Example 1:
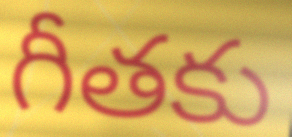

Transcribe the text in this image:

గీతకు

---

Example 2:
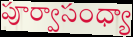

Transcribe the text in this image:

పూర్వాసంధ్యా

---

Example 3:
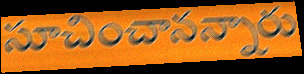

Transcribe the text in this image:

సూచించానన్నారు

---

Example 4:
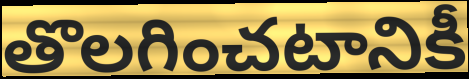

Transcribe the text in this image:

తొలగించటానికీ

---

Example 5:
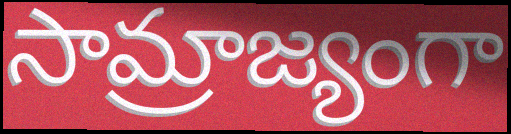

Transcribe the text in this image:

సామ్రాజ్యంగా